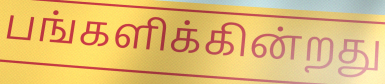
பங்களிக்கின்றது